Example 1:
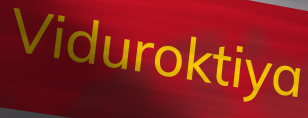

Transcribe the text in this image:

Viduroktiya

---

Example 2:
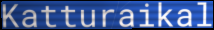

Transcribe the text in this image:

Katturaikal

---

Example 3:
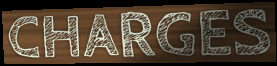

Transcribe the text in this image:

CHARGES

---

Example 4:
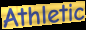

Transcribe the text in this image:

Athletic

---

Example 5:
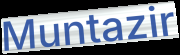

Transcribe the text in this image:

Muntazir